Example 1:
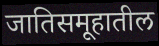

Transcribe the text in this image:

जातिसमूहातील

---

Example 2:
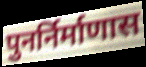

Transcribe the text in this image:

पुनर्निर्माणास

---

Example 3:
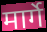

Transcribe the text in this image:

मार्गे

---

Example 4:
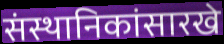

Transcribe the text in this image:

संस्थानिकांसारखे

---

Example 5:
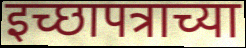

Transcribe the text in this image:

इच्छापत्राच्या